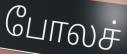
போலச்